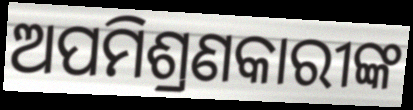
ଅପମିଶ୍ରଣକାରୀଙ୍କ